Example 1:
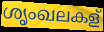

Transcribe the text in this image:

ശൃംഖലകള്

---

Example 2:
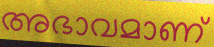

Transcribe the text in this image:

അഭാവമാണ്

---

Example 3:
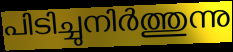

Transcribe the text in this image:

പിടിച്ചുനിർത്തുന്നു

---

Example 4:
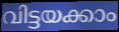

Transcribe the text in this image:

വിട്ടയക്കാം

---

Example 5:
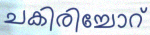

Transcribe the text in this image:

ചകിരിച്ചോറ്